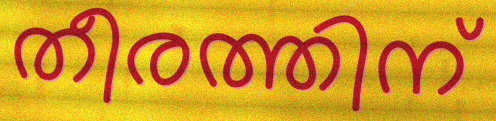
തീരത്തിന്